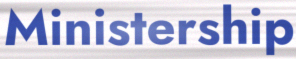
Ministership